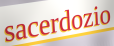
sacerdozio